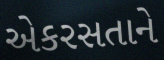
એકરસતાને